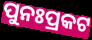
ପୁନଃପ୍ରକଟ